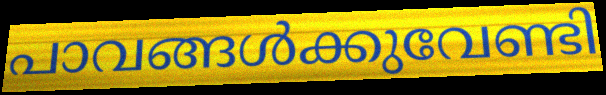
പാവങ്ങൾക്കുവേണ്ടി